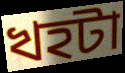
খহটা